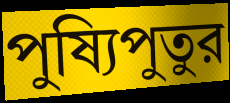
পুষ্যিপুতুর